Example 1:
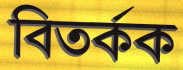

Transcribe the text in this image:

বিতৰ্কক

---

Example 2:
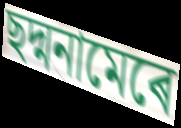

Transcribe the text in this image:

ছদ্মনামেৰে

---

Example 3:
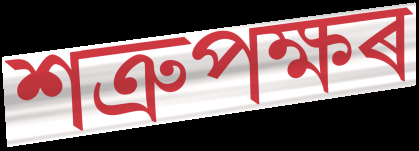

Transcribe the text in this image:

শত্ৰুপক্ষৰ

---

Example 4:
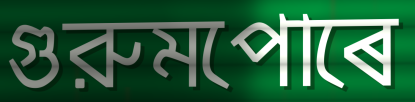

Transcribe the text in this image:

গুৰুমপোৰে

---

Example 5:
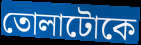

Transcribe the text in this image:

তোলাটোকে